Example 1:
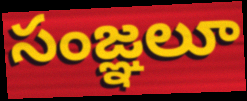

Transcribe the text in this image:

సంజ్ఞలూ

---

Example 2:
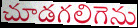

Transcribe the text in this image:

చూడగలిగెను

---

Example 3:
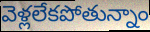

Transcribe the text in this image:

వెళ్లలేకపోతున్నాం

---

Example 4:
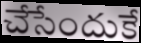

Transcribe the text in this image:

చేసేందుకే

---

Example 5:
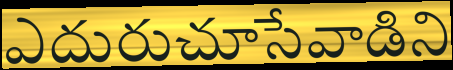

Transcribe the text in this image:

ఎదురుచూసేవాడిని